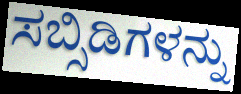
ಸಬ್ಸಿಡಿಗಳನ್ನು